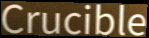
Crucible